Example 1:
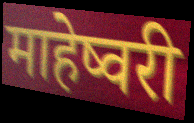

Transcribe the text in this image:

माहेष्वरी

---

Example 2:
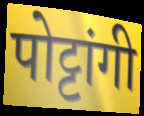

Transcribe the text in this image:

पोट्टांगी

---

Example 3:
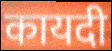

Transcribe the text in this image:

कायदी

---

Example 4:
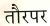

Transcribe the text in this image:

तौरपर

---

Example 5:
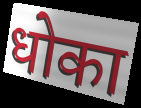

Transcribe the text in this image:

धोका